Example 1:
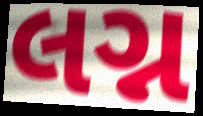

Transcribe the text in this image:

લગ્ન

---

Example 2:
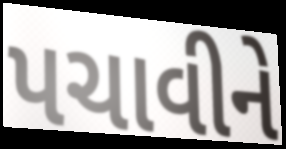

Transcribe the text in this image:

પચાવીને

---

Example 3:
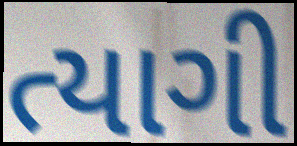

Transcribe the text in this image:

ત્યાગી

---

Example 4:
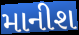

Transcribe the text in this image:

માનીશ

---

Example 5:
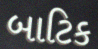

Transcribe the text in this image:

બાટિક